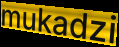
mukadzi